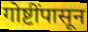
गोष्टींपासून